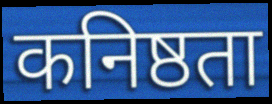
कनिष्ठता